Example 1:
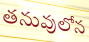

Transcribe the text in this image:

తనువులోన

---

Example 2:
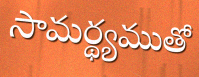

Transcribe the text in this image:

సామర్థ్యముతో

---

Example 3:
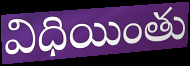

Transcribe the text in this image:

విధియింతు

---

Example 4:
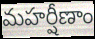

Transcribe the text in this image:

మహర్షీణాం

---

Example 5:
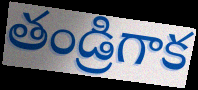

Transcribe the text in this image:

తండ్రిగాక